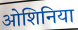
ओशिनिया